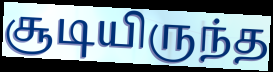
சூடியிருந்த